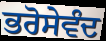
ਭਰੋਸੇਵੰਦ